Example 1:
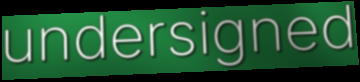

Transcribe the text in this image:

undersigned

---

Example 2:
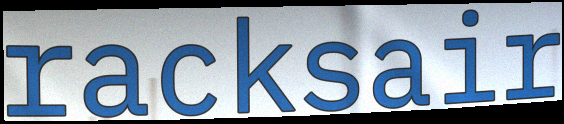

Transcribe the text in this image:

racksair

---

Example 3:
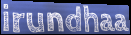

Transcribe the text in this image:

irundhaa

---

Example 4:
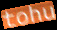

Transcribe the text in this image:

tohu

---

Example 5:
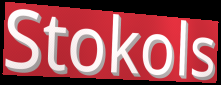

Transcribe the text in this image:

Stokols